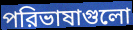
পরিভাষাগুলো